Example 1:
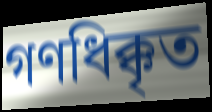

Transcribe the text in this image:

গণধিক্কৃত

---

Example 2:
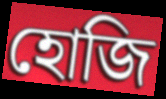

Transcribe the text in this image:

হোজি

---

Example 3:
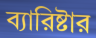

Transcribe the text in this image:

ব্যারিষ্টার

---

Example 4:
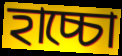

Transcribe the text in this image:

হাচ্চো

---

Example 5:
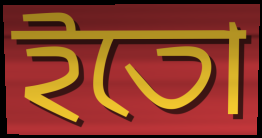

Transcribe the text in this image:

ইতো